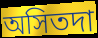
অসিতদা